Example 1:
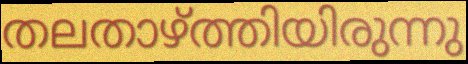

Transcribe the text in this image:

തലതാഴ്ത്തിയിരുന്നു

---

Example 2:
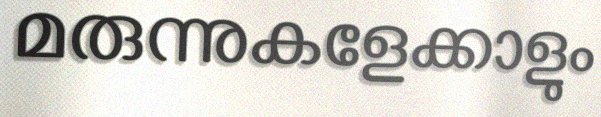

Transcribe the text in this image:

മരുന്നുകളേക്കാളും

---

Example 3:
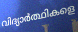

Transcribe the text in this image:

വിദ്യാർത്ഥികളെ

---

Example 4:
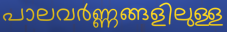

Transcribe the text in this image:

പാലവർണ്ണങ്ങളിലുള്ള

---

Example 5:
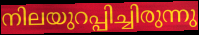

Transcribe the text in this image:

നിലയുറപ്പിച്ചിരുന്നു